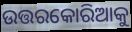
ଉତ୍ତରକୋରିଆକୁ